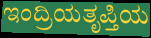
ಇಂದ್ರಿಯತೃಪ್ತಿಯ